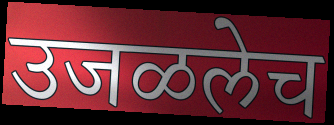
उजळलेच